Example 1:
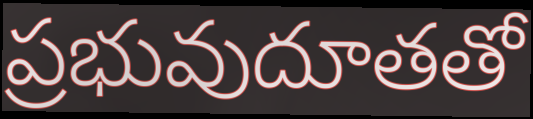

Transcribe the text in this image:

ప్రభువుదూతతో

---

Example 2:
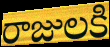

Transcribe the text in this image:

రాజులకి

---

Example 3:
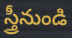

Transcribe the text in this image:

స్త్రీనుండి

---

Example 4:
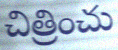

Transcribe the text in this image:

చిత్రించు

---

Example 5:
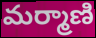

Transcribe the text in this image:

మర్మాణి